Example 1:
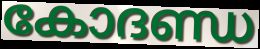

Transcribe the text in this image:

കോദണ്ഡ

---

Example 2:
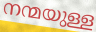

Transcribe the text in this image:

നന്മയുള്ള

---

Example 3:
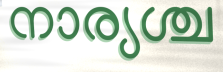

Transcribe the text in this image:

നാര്യശ്ച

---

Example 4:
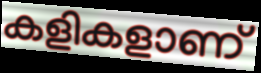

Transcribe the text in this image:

കളികളാണ്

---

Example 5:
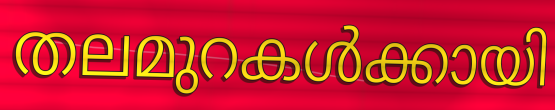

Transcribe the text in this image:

തലമുറകൾക്കായി